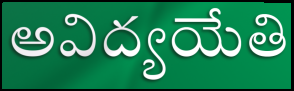
అవిద్యయేతి